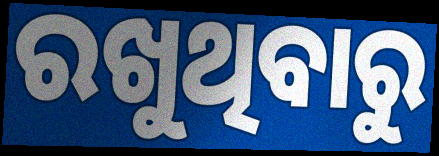
ରଖୁଥିବାରୁ